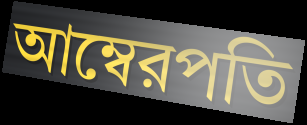
আম্বেরপতি